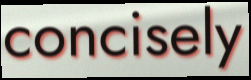
concisely